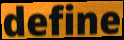
define